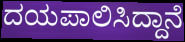
ದಯಪಾಲಿಸಿದ್ದಾನೆ